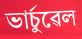
ভাৰ্চুৱেল